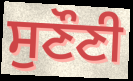
ਸੁਣੌਣੀ